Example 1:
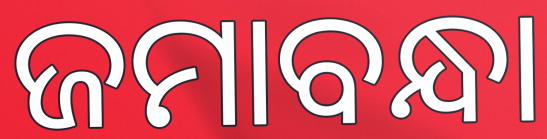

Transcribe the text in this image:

ଜମାବନ୍ଧା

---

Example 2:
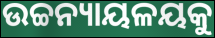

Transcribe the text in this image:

ଉଚ୍ଚନ୍ୟାୟଳୟକୁ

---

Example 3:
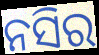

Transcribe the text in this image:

ନସିର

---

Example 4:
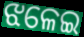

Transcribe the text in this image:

ଝଳେଇ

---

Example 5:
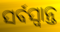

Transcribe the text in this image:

ସର୍ବସ୍ୱାନ୍ତ